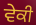
ਵੇਕੀ